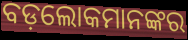
ବଡ଼ଲୋକମାନଙ୍କର